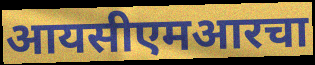
आयसीएमआरचा